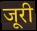
जूरी